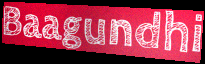
Baagundhi